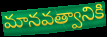
మానవత్వానికి